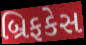
બ્રિફકેસ